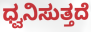
ಧ್ವನಿಸುತ್ತದೆ